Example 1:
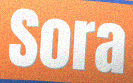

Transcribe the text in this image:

Sora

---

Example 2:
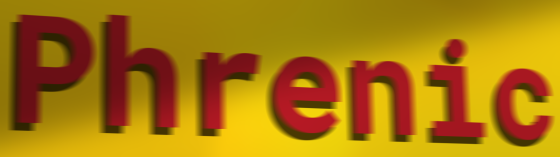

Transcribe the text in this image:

Phrenic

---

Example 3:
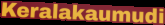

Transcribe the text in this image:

Keralakaumudi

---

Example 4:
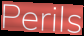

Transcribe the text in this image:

Perils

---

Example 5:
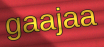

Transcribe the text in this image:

gaajaa